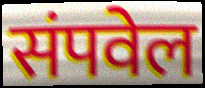
संपवेल